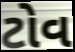
ટોવ